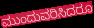
ಮುಂದುವರಿಸಿದರೂ